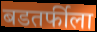
बडतर्फीला